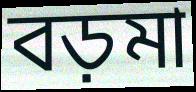
বড়মা